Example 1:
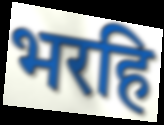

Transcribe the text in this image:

भरहि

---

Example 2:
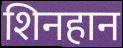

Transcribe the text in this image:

शिनहान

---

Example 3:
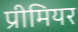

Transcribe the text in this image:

प्रीमियर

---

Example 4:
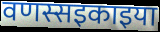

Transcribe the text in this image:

वणस्सइकाइया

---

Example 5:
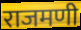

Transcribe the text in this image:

राजमणी